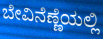
ಬೇವಿನೆಣ್ಣೆಯಲ್ಲಿ